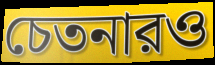
চেতনারও